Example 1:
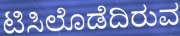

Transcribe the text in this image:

ಟಿಸಿಲೊಡೆದಿರುವ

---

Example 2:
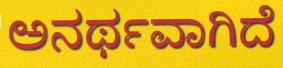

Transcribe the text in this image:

ಅನರ್ಥವಾಗಿದೆ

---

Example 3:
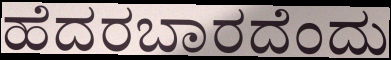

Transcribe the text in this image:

ಹೆದರಬಾರದೆಂದು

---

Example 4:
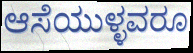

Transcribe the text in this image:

ಆಸೆಯುಳ್ಳವರೂ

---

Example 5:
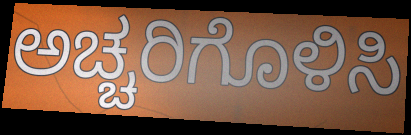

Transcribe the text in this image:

ಅಚ್ಚರಿಗೊಳಿಸಿ